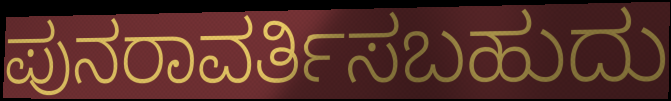
ಪುನರಾವರ್ತಿಸಬಹುದು